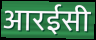
आरईसी